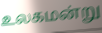
உலகமன்று